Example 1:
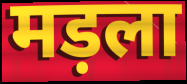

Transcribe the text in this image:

मड़ला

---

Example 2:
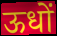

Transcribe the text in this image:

ऊधों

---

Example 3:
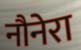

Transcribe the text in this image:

नौनेरा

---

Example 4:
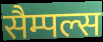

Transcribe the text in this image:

सैम्‍पल्‍स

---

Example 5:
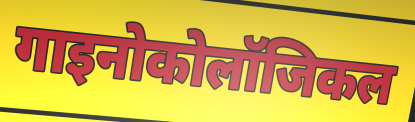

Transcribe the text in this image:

गाइनोकोलॉजिकल